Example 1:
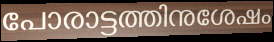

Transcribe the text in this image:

പോരാട്ടത്തിനുശേഷം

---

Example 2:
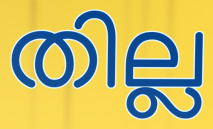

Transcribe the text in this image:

തില്ല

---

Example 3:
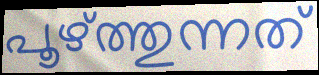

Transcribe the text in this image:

പൂഴ്ത്തുന്നത്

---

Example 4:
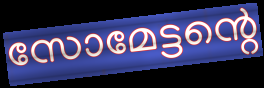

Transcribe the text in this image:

സോമേട്ടന്റെ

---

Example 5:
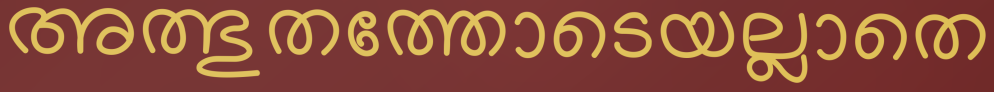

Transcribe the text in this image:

അത്ഭുതത്തോടെയല്ലാതെ